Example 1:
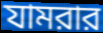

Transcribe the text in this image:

যামরার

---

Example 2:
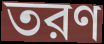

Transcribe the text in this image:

তরণ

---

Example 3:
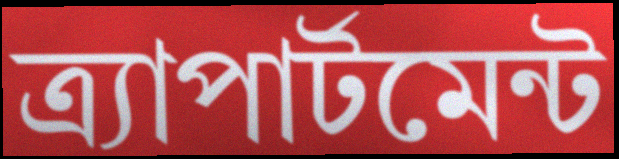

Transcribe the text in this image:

ত্র্যাপার্টমেন্ট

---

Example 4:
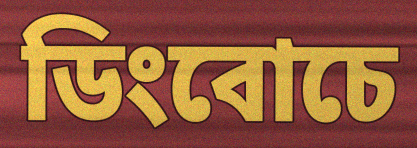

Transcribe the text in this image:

ডিংবোচে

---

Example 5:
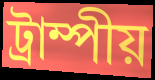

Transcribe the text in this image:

ট্রাম্পীয়